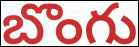
బొంగు